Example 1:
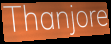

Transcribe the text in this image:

Thanjore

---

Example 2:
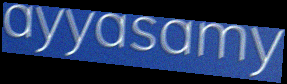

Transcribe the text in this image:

ayyasamy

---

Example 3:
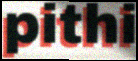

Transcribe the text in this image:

pithi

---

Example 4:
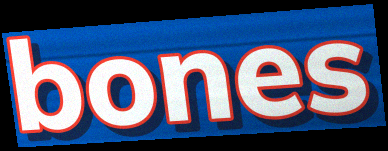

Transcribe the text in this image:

bones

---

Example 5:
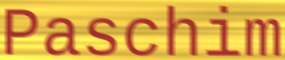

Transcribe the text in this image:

Paschim